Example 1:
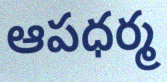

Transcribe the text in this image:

ఆపధర్మ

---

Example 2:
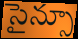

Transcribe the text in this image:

సైన్సూ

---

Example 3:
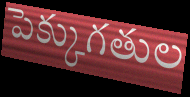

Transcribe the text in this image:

పెక్కుగతుల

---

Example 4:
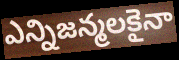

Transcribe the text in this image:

ఎన్నిజన్మలకైనా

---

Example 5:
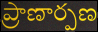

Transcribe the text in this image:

ప్రాణార్పణ